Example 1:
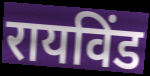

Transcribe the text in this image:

रायविंड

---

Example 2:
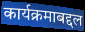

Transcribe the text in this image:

कार्यक्रमाबद्दल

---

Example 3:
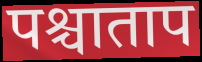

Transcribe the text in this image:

पश्चाताप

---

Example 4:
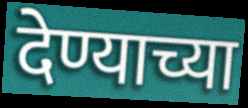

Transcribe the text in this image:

देण्याच्या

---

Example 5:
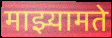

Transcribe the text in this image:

माझ्यामते